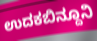
ಉದಕಬಿನ್ದೂನಿ